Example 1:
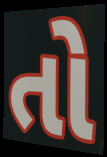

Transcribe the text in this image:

તો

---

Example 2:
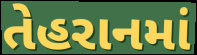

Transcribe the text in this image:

તેહરાનમાં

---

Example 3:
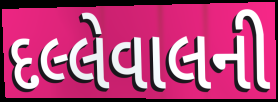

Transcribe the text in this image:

દલ્લેવાલની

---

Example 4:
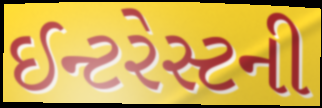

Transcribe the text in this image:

ઈન્ટરેસ્ટની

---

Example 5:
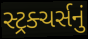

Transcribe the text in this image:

સ્ટ્રક્ચર્સનું